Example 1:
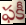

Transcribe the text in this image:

ఫకీ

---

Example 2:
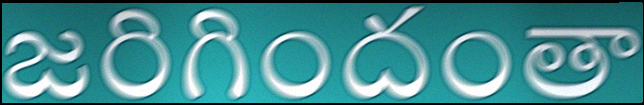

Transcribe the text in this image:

జరిగిందంతా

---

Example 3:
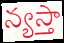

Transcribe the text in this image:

న్యస్తా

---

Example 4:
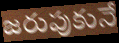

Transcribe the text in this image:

జరుపుకునే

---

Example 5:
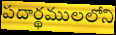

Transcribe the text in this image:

పదార్థములలోని